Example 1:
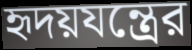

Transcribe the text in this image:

হৃদয়যন্ত্রের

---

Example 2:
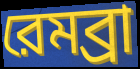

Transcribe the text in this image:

রেমব্রা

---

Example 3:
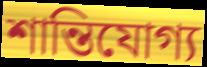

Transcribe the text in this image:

শান্তিযোগ্য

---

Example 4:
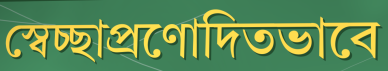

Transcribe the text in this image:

স্বেচ্ছাপ্রণোদিতভাবে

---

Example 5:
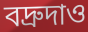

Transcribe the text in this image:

বদ্রুদাও